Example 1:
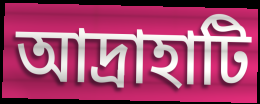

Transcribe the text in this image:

আদ্রাহাটি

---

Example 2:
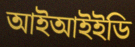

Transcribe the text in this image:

আইআইইডি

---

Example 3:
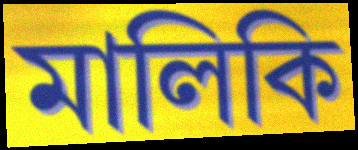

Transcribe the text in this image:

মালিকি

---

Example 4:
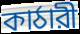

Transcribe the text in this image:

কাঠারী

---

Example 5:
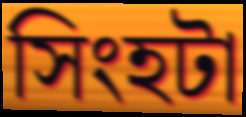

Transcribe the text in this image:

সিংহটা